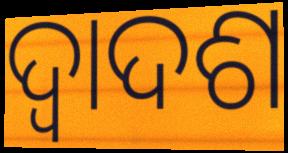
ଦ୍ୱାଦଶ